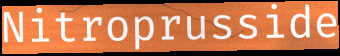
Nitroprusside